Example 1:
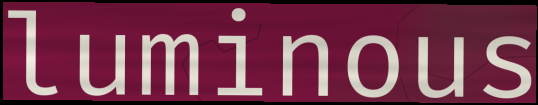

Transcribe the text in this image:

luminous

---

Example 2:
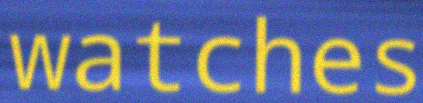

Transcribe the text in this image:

watches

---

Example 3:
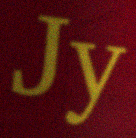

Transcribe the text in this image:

Jy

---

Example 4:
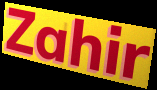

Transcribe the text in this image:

Zahir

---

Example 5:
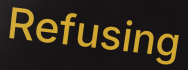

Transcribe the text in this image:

Refusing